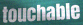
touchable